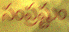
సంప్రష్టుం